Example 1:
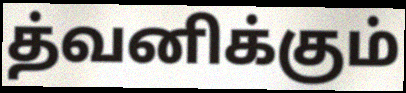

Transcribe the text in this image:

த்வனிக்கும்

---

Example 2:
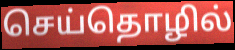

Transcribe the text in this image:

செய்தொழில்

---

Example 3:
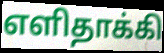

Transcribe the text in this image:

எளிதாக்கி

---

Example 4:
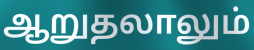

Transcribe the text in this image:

ஆறுதலாலும்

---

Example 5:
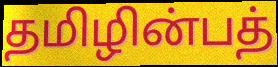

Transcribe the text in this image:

தமிழின்பத்